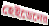
হেইডেনের